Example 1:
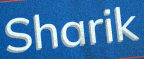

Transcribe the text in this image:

Sharik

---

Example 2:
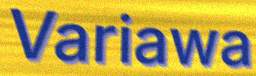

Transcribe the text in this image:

Variawa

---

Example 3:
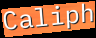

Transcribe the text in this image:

Caliph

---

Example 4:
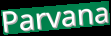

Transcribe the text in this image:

Parvana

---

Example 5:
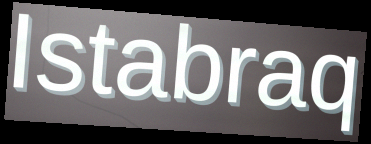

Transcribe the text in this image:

Istabraq